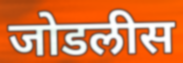
जोडलीस